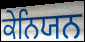
ਕੇਨਿਯਨ